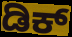
ಡಿಕ್